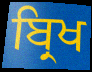
ਬ੍ਰਿਖ